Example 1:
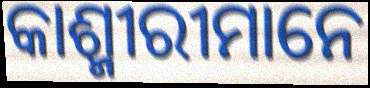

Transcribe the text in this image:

କାଶ୍ମୀରୀମାନେ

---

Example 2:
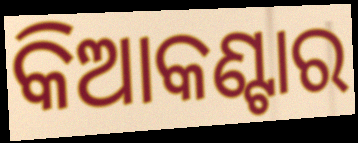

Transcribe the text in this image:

କିଆକଣ୍ଟାର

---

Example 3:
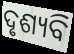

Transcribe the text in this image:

ଦୃଶ୍ୟବି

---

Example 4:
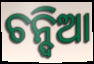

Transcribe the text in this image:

ଚନ୍ଦିଆ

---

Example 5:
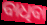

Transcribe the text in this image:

ବାଧିବା